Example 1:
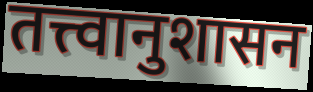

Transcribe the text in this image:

तत्त्वानुशासन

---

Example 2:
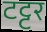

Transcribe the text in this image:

टट्टर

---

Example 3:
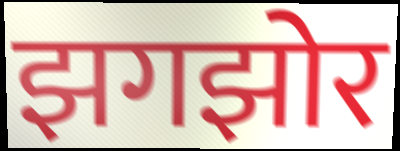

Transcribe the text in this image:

झगझोर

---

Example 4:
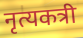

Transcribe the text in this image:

नृत्यकत्री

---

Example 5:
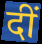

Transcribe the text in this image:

दीं